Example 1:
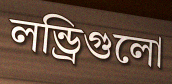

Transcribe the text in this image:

লন্ড্রিগুলো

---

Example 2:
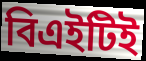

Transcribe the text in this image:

বিএইটিই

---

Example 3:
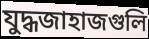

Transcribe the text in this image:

যুদ্ধজাহাজগুলি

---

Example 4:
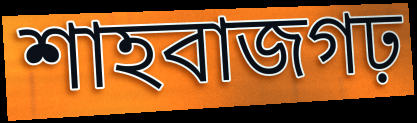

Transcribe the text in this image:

শাহবাজগঢ়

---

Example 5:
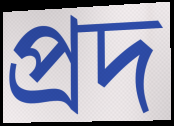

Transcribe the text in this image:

প্রদ